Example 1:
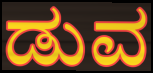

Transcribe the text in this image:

ಡುವ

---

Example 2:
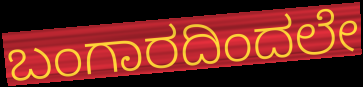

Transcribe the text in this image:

ಬಂಗಾರದಿಂದಲೇ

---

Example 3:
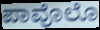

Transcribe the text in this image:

ಪಾವೊಲೊ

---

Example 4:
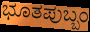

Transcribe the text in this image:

ಭೂತಪುಬ್ಬಂ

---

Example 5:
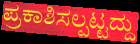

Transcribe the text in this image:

ಪ್ರಕಾಶಿಸಲ್ಪಟ್ಟದ್ದು